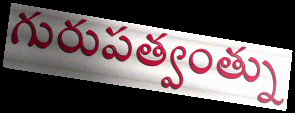
గురుపత్వంత్ను